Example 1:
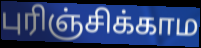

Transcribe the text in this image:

புரிஞ்சிக்காம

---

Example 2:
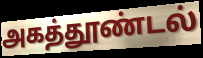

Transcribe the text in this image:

அகத்தூண்டல்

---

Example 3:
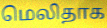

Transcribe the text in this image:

மெலிதாக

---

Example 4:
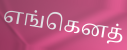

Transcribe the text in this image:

எங்கெனத்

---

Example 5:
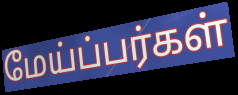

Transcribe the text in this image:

மேய்ப்பர்கள்